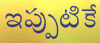
ఇప్పుటికే